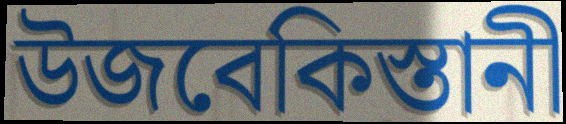
উজবেকিস্তানী